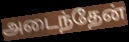
அடைந்தேன்